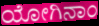
ಯೋಗಿನಾಂ